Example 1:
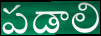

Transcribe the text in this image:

పడాలి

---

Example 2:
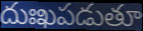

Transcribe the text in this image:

దుఃఖపడుతూ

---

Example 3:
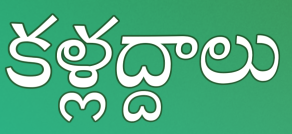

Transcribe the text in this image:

కళ్లద్దాలు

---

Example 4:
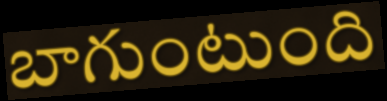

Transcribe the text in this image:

బాగుంటుంది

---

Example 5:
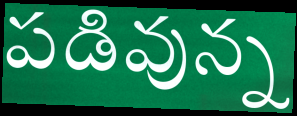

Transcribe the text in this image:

పడివున్న